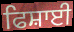
ਫਿਸ਼ਾਈ